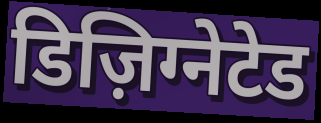
डिज़िग्नेटेड